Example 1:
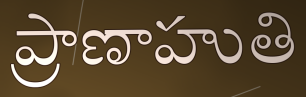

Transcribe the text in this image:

ప్రాణాహుతి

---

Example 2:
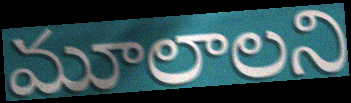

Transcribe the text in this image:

మూలాలని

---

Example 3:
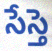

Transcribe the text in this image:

సేస్తె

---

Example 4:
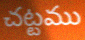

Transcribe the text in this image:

చట్టము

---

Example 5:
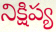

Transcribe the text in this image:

నిక్షిప్య